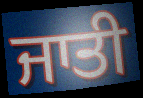
ਜਾਤੀ